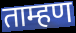
ताम्हण